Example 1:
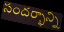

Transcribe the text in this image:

సందర్భాన్ని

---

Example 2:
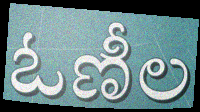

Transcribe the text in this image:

ఓణీల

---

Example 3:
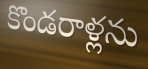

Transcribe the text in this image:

కొండరాళ్లను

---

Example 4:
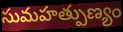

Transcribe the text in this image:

సుమహత్పుణ్యం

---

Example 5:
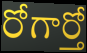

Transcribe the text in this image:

రోగార్తో